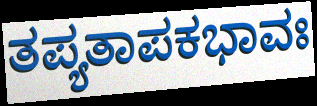
ತಪ್ಯತಾಪಕಭಾವಃ